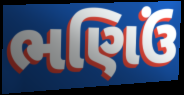
ભણિઉં